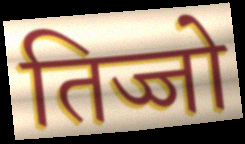
तिज्जो